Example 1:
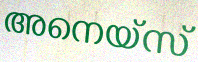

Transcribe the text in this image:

അനെയ്സ്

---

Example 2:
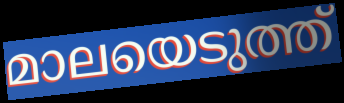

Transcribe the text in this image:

മാലയെടുത്ത്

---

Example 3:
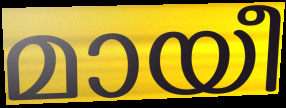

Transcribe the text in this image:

മായീ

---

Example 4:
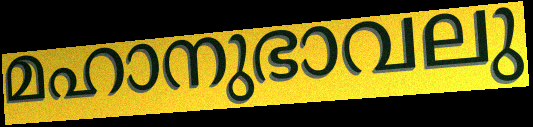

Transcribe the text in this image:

മഹാനുഭാവലു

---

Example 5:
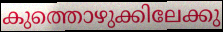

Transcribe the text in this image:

കുത്തൊഴുക്കിലേക്കു